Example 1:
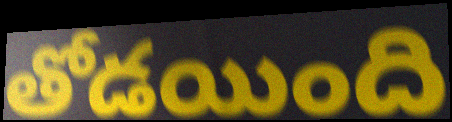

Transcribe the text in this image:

తోడయింది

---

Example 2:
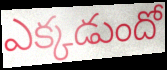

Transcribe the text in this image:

ఎక్కడుందో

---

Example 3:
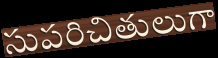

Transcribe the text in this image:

సుపరిచితులుగా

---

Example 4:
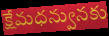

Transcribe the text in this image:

క్షేమధన్వునకు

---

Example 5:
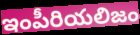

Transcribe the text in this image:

ఇంపీరియలిజం